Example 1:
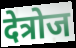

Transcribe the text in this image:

देत्रोज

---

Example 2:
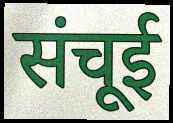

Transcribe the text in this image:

संचूई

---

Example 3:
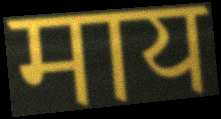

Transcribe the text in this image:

माय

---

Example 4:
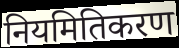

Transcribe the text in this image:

नियमितिकरण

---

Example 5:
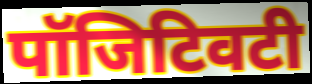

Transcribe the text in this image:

पॉजिटिवटी